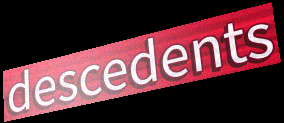
descedents